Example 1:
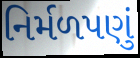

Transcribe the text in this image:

નિર્મળપણું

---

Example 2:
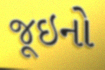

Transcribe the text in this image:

જૂઇનો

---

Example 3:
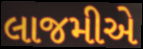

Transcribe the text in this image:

લાજમીએ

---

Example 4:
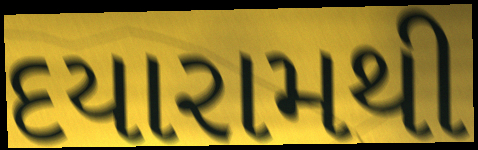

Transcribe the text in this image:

દયારામથી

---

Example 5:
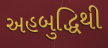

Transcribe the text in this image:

અહબુદ્ધિથી